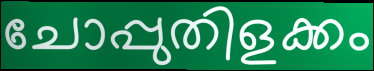
ചോപ്പുതിളക്കം